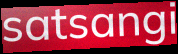
satsangi